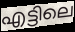
എട്ടിലെ